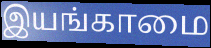
இயங்காமை